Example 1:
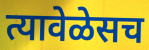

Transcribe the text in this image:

त्यावेळेसच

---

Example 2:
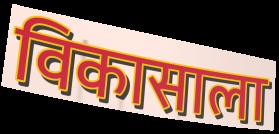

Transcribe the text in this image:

विकासाला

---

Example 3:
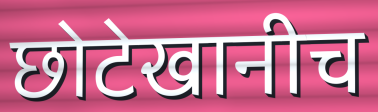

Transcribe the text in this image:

छोटेखानीच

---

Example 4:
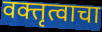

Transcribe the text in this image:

वक्तृत्वाचा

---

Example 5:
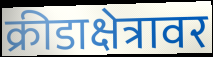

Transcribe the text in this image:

क्रीडाक्षेत्रावर